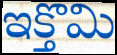
ఇక్తొమి